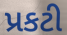
પ્રકટી